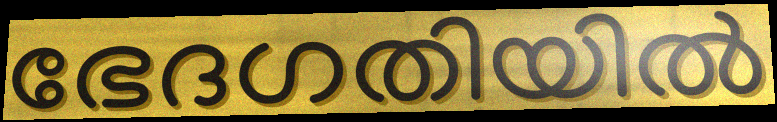
ഭേദഗതിയിൽ